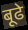
बूढे